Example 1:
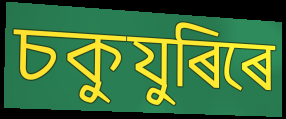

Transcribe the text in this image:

চকুযুৰিৰে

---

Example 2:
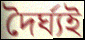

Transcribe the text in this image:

দৈৰ্ঘ্যই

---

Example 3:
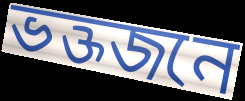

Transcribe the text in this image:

ভক্তজনে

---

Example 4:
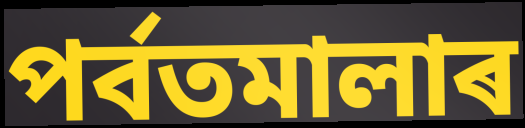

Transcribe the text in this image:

পৰ্বতমালাৰ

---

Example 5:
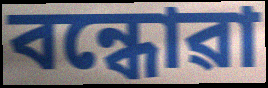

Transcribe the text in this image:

বন্ধোৱা